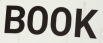
BOOK